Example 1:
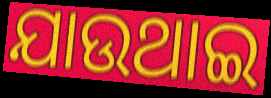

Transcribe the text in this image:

ଯାଉଥାଇ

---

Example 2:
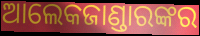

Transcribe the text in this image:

ଆଲେକଜାଣ୍ଡାରଙ୍କର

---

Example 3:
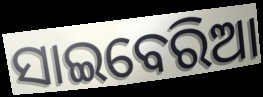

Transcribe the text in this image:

ସାଇବେରିଆ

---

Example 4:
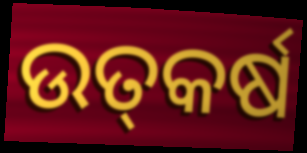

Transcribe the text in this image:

ଉତ୍‌କର୍ଷ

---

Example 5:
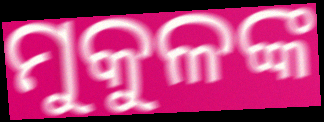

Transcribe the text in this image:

ମୁକୁଳଙ୍କ